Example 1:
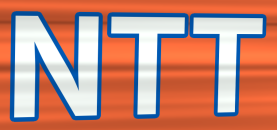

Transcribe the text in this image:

NTT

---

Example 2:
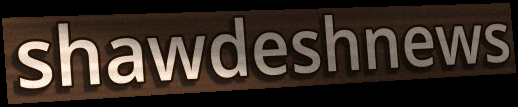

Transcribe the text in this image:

shawdeshnews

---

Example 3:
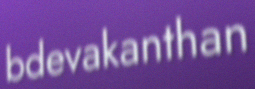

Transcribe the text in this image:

bdevakanthan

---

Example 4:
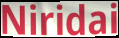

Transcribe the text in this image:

Niridai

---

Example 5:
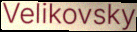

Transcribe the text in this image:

Velikovsky